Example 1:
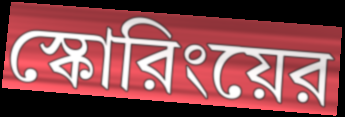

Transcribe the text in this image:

স্কোরিংয়ের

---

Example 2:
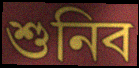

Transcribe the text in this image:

শুনিব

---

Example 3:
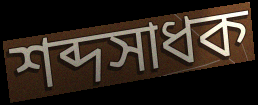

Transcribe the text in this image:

শব্দসাধক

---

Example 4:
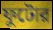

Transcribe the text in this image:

ফুটোর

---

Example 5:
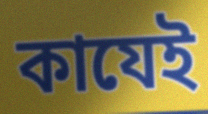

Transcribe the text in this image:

কাযেই